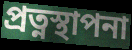
প্রত্নস্থাপনা